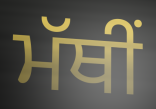
ਮੱਥੀਂ